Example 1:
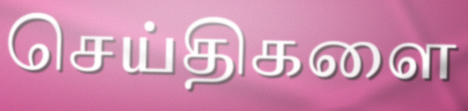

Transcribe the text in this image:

செய்திகளை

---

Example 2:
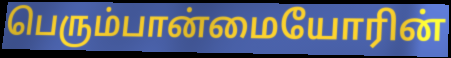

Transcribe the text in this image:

பெரும்பான்மையோரின்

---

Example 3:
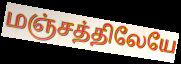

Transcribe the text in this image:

மஞ்சத்திலேயே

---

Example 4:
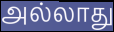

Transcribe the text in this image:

அல்லாது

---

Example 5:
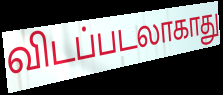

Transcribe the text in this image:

விடப்படலாகாது